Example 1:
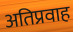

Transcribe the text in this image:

अतिप्रवाह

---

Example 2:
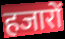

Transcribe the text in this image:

हजारों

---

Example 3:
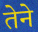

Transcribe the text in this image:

तेने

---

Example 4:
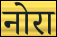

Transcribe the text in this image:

नोरा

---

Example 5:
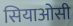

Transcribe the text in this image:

सियाओसी